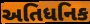
અતિધનિક